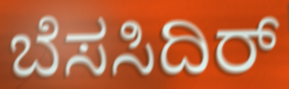
ಬೆಸಸಿದಿರ್